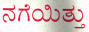
ನಗೆಯಿತ್ತು